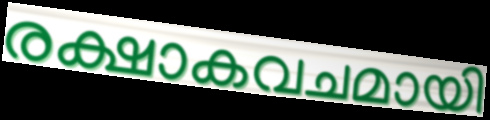
രക്ഷാകവചമായി